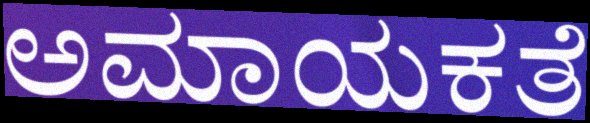
ಅಮಾಯಕತೆ